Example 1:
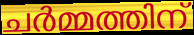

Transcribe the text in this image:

ചർമ്മത്തിന്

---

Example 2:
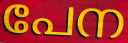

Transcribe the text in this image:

പേന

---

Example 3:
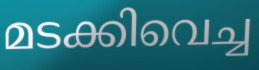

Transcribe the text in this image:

മടക്കിവെച്ച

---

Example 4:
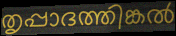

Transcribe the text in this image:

തൃപ്പാദത്തിങ്കൽ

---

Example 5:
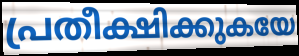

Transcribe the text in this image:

പ്രതീക്ഷിക്കുകയേ